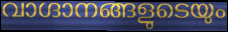
വാഗ്ദാനങ്ങളുടെയും